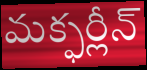
మక్ఫర్లీన్